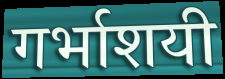
गर्भाशयी